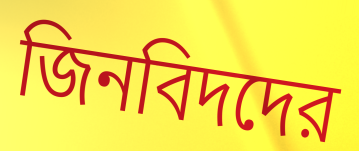
জিনবিদদের